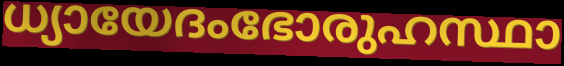
ധ്യായേദംഭോരുഹസ്ഥാ